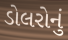
ડોલરોનું